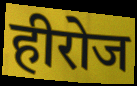
हीरोज